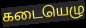
கடையெழு